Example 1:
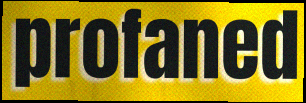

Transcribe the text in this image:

profaned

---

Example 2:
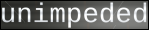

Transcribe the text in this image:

unimpeded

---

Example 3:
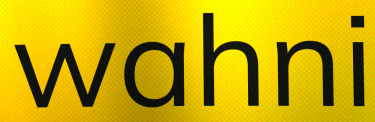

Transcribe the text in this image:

wahni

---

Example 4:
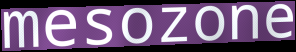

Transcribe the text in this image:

mesozone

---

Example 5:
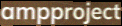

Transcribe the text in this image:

ampproject